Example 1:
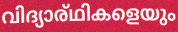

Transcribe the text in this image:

വിദ്യാര്ഥികളെയും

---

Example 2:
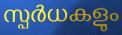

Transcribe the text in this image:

സ്പർധകളും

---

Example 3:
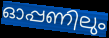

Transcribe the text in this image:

ഓപ്പണിലും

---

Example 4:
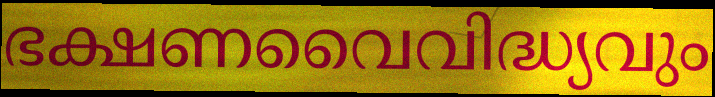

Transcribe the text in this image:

ഭക്ഷണവൈവിദ്ധ്യവും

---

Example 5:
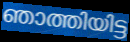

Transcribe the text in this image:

ഞാത്തിയിട്ട